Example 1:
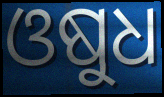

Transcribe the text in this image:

ଓଷୁଧ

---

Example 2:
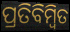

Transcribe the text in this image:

ପ୍ରତିବିମ୍ବିତ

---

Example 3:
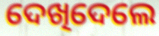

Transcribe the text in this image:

ଦେଖିଦେଲେ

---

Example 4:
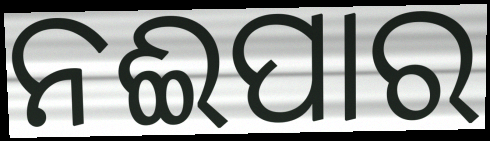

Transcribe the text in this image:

ନଈପାର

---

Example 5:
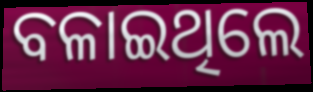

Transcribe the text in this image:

ବଳାଇଥିଲେ